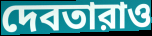
দেবতারাও